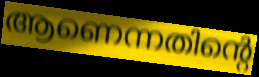
ആണെന്നതിന്റെ